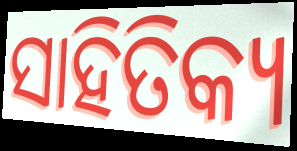
ସାହିତିକ୍ୟ